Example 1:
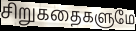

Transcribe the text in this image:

சிறுகதைகளுமே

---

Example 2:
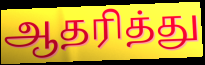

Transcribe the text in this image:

ஆதரித்து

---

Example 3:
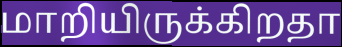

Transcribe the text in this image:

மாறியிருக்கிறதா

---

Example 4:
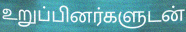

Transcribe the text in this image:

உறுப்பினர்களுடன்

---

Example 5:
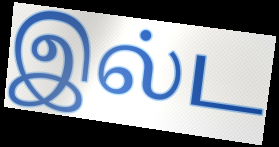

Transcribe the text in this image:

இல்ட